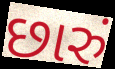
છારું